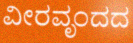
ವೀರವೃಂದದ